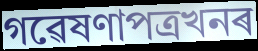
গৱেষণাপত্ৰখনৰ